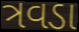
ત્રવડા